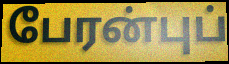
பேரன்புப்